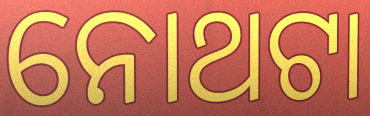
ନୋଥଟା